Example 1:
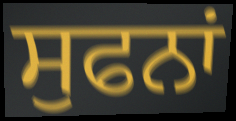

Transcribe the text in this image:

ਸੁਫਨਾਂ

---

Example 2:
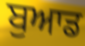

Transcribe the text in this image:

ਬੁਆਡ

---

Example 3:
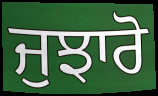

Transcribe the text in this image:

ਜੁਝਾਰੋ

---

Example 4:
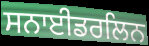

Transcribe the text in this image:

ਸਨਾਈਡਰਲਿਨ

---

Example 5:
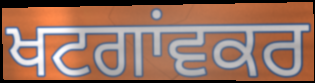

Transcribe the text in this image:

ਖਟਗਾਂਵਕਰ